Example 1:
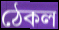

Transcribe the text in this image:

ঠেকল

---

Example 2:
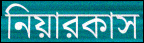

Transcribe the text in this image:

নিয়ারকাস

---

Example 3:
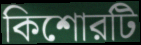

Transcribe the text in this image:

কিশোরটি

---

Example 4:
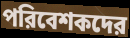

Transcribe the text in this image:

পরিবেশকদের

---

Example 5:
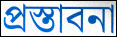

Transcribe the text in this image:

প্রস্তাবনা